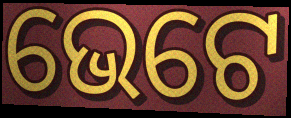
ଭେଟେ